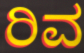
ರಿವ